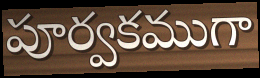
పూర్వకముగా